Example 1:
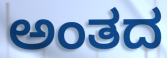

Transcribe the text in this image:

ಅಂತದ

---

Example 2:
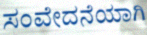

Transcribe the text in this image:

ಸಂವೇದನೆಯಾಗಿ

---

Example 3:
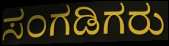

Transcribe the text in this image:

ಸಂಗಡಿಗರು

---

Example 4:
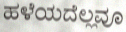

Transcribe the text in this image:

ಹಳೆಯದೆಲ್ಲವೂ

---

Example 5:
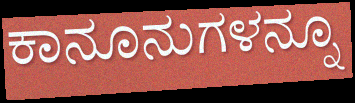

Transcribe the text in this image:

ಕಾನೂನುಗಳನ್ನೂ